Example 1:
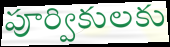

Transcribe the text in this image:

పూర్వికులకు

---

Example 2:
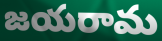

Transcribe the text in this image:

జయరామ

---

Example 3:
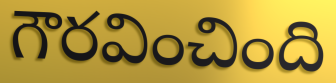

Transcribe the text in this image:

గౌరవించింది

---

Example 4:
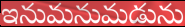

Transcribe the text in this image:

ఇనుమనుమడును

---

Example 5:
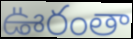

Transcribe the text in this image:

ఊరంతా